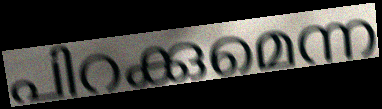
പിറക്കുമെന്ന